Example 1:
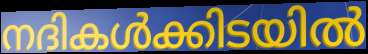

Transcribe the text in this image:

നദികൾക്കിടയിൽ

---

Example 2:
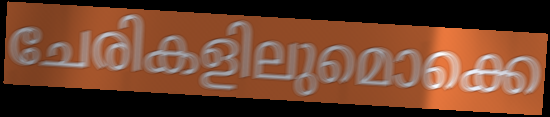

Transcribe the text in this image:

ചേരികളിലുമൊക്കെ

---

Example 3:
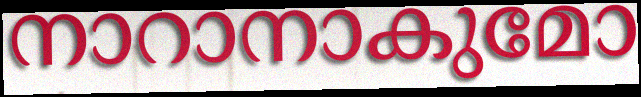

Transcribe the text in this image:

നാറാനാകുമോ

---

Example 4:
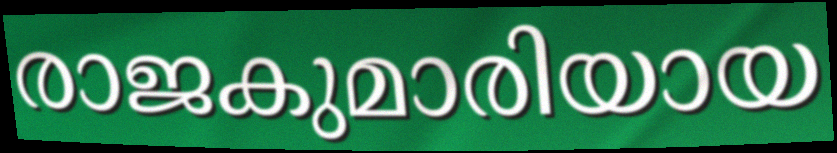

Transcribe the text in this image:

രാജകുമാരിയായ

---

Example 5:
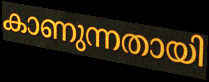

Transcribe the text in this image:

കാണുന്നതായി